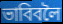
ভাবিবলৈ